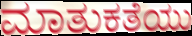
ಮಾತುಕತೆಯು